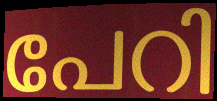
പേറി